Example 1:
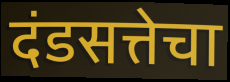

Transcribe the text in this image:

दंडसत्तेचा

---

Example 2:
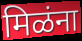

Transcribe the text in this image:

मिळंना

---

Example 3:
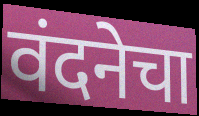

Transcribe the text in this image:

वंदनेचा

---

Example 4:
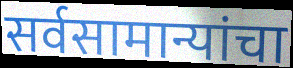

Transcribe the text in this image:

सर्वसामान्यांचा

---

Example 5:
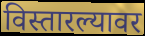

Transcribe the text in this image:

विस्तारल्यावर